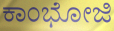
ಕಾಂಭೋಜಿ